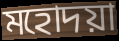
মহোদয়া